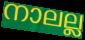
നാലല്ല